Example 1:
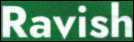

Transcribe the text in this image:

Ravish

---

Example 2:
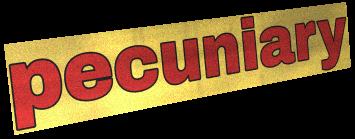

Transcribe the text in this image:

pecuniary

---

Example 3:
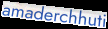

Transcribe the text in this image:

amaderchhuti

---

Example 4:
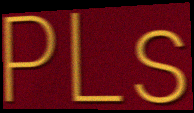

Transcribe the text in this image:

PLs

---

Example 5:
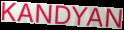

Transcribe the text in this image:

KANDYAN